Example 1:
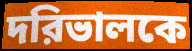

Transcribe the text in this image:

দরিভালকে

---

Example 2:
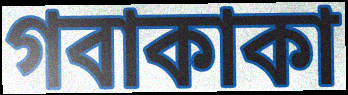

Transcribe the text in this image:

গবাকাকা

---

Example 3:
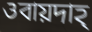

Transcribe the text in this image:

ওবায়দাহ্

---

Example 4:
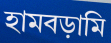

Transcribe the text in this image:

হামবড়ামি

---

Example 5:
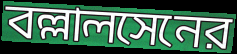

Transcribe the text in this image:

বল্লালসেনের